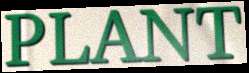
PLANT